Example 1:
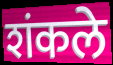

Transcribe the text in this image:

शंकले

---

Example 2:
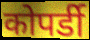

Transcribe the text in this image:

कोपर्डी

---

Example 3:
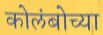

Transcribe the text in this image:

कोलंबोच्या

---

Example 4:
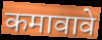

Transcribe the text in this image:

कमावावे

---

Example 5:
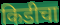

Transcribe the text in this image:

किडीचा